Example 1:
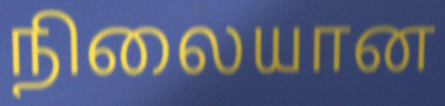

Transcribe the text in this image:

நிலையான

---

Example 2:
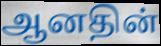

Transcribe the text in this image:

ஆனதின்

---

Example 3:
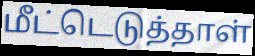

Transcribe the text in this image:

மீட்டெடுத்தாள்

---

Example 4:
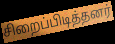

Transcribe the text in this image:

சிறைப்பிடித்தனர்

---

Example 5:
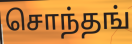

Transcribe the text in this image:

சொந்தங்